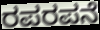
ರಪರಪನೆ